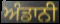
ਅੰਡਾਨੀ